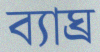
ব্যাঘ্ৰ